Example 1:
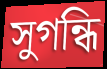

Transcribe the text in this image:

সুগন্ধি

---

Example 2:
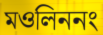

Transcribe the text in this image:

মওলিননং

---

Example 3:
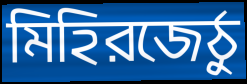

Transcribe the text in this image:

মিহিরজেঠু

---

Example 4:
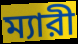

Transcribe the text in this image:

ম্যারী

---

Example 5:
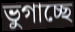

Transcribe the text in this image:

ভুগাচ্ছে